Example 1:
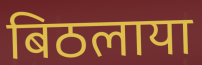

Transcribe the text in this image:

बिठलाया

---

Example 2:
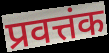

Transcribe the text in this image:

प्रवत्तंक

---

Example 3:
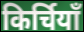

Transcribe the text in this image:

किर्चियाँ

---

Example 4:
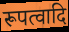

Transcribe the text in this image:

रूपत्वादि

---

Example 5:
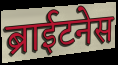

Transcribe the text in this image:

ब्राईटनेस